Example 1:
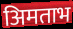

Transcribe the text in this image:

अिमताभ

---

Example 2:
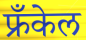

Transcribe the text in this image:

फ्रँकेल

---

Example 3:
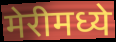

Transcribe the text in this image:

मेरीमध्ये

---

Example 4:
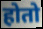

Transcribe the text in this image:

होतो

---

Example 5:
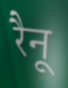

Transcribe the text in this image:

रैनू